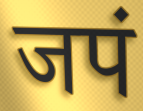
जपं